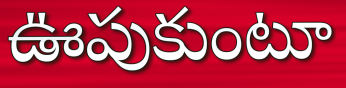
ఊపుకుంటూ